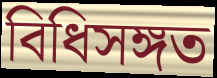
বিধিসঙ্গত